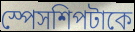
স্পেসশিপটাকে